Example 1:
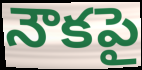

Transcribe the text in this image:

నౌకపై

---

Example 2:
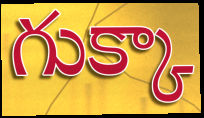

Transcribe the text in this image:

గుక్కా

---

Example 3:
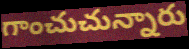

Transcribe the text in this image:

గాంచుచున్నారు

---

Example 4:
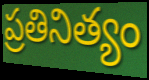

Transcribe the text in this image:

ప్రతినిత్యం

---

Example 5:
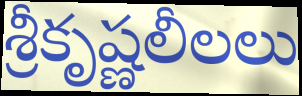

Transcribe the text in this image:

శ్రీకృష్ణలీలలు